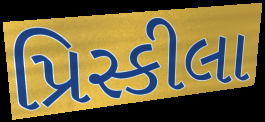
પ્રિસ્કીલા